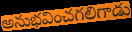
అనుభవించగలిగాడు